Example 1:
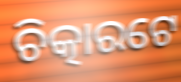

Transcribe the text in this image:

ଚିତ୍କାରଟେ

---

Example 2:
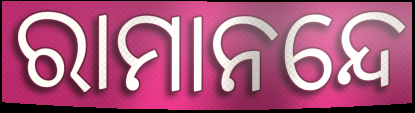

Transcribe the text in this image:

ରାମାନନ୍ଦେ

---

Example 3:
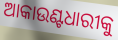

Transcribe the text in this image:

ଆକାଉଣ୍ଟଧାରୀକୁ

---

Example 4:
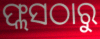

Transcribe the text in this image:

ଫ୍ଲସଠାରୁ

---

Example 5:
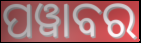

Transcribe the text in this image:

ପୱାବର